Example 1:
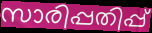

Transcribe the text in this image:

സാരിപ്പതിപ്പ്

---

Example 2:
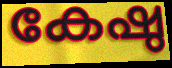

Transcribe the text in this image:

കേഷു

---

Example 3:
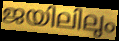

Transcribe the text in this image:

ജയിലിലും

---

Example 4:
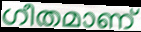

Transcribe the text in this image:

ഗീതമാണ്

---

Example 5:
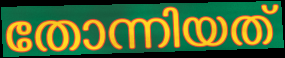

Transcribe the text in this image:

തോന്നിയത്